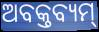
ଅବକ୍ତବ୍ୟମ୍